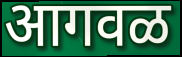
आगवळ